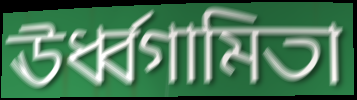
ঊর্ধ্বগামিতা